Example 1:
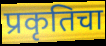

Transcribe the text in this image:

प्रकृतिचा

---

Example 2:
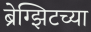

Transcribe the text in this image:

ब्रेग्झिटच्या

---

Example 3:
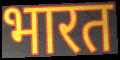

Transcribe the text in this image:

भारत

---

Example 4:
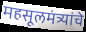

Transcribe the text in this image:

महसूलमंत्र्यांचे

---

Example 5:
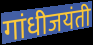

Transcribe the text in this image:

गांधीजयंती